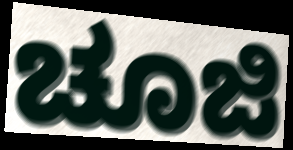
ಚೂಜಿ